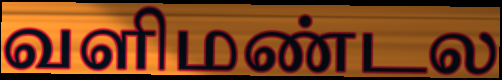
வளிமண்டல